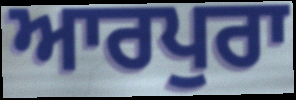
ਆਰਪੁਰਾ